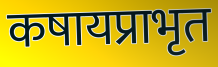
कषायप्राभृत